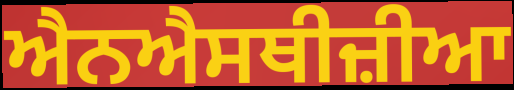
ਐਨਐਸਥੀਜ਼ੀਆ